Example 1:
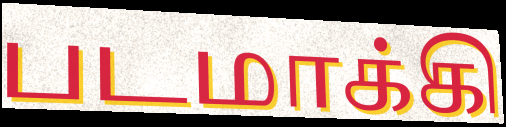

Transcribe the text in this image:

படமாக்கி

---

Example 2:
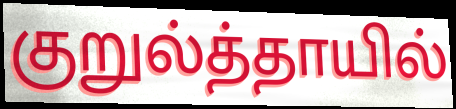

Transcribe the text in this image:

குறுல்த்தாயில்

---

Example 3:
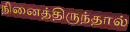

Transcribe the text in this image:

நினைத்திருந்தால்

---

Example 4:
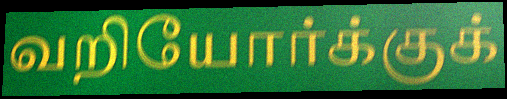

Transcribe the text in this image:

வறியோர்க்குக்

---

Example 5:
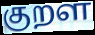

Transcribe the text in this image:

குறள